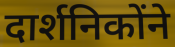
दार्शनिकोंने